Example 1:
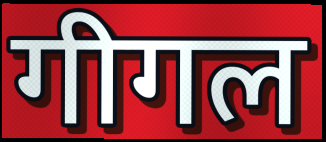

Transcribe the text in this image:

गीगल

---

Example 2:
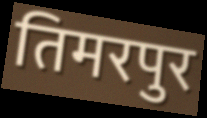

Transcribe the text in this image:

तिमरपुर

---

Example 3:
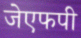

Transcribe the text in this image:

जेएफपी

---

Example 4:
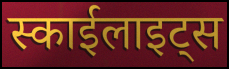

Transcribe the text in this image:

स्काईलाइट्स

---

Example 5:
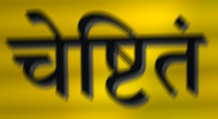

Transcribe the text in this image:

चेष्टितं